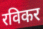
रविकर